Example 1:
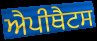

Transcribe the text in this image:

ਐਪੀਥੈਟਸ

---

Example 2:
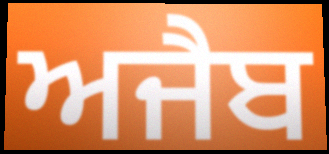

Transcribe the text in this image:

ਅਜੈਬ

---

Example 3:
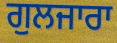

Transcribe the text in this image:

ਗੁਲਜਾਰਾ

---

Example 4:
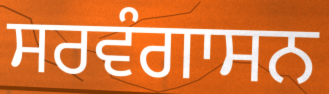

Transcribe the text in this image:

ਸਰਵੰਗਾਸਨ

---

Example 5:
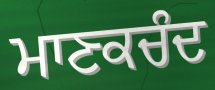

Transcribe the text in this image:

ਮਾਣਕਚੰਦ